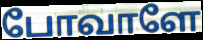
போவாளே